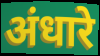
अंधारे